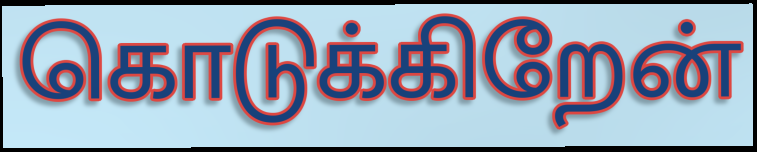
கொடுக்கிறேன்